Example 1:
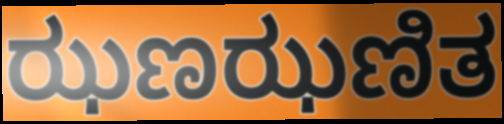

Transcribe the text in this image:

ಝಣಝಣಿತ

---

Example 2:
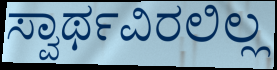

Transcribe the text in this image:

ಸ್ವಾರ್ಥವಿರಲಿಲ್ಲ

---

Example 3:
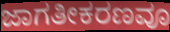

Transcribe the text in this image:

ಜಾಗತೀಕರಣವೂ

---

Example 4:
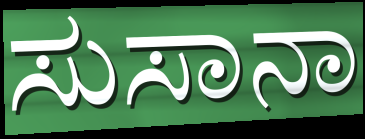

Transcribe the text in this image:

ಸುಸಾನಾ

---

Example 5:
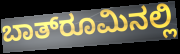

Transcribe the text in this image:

ಬಾತ್‌ರೂಮಿನಲ್ಲಿ